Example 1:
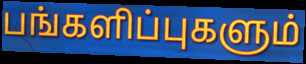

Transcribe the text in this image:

பங்களிப்புகளும்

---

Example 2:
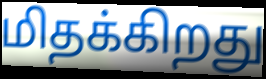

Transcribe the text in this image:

மிதக்கிறது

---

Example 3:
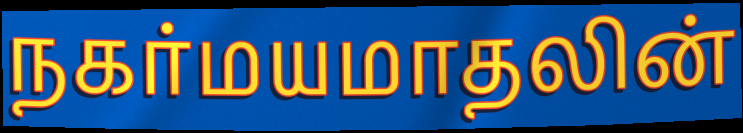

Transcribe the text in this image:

நகர்மயமாதலின்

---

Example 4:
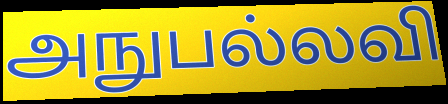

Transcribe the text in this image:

அநுபல்லவி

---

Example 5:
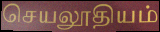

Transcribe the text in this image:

செயலூதியம்